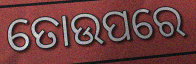
ତୋଉପରେ